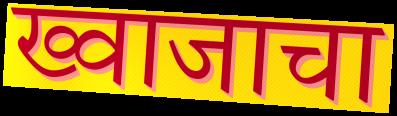
ख्वाजाचा